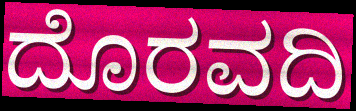
ದೊರವದಿ